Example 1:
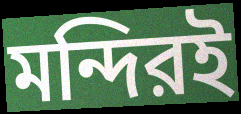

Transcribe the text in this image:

মন্দিরই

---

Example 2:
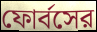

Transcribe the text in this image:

ফোর্বসের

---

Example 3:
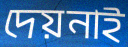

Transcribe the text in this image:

দেয়নাই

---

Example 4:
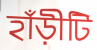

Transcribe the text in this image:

হাঁড়ীটি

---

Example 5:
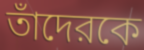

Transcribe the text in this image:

তাঁদেরকে